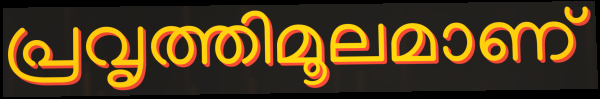
പ്രവൃത്തിമൂലമാണ്